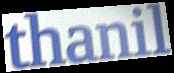
thanil